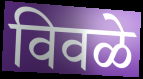
विवळे